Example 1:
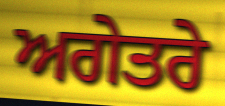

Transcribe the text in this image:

ਅਗੇਤਰੇ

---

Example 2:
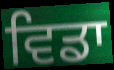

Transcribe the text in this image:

ਵਿਡਾ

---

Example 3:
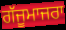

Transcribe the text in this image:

ਗੱਜੂਮਾਜਰਾ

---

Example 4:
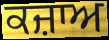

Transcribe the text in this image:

ਕਜ਼ਾਅ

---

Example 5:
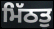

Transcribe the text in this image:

ਮਿੱਠਤੁ